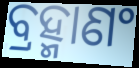
ବ୍ରହ୍ମାଣଂ